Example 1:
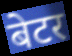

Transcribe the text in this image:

बेटर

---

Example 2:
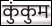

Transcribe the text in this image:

कुंकुम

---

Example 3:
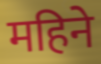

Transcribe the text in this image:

महिने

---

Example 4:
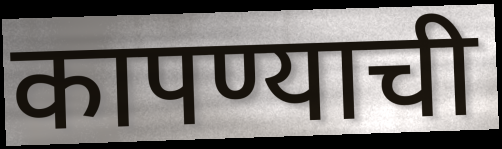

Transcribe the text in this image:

कापण्याची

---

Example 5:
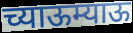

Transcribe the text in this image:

च्याऊम्याऊ